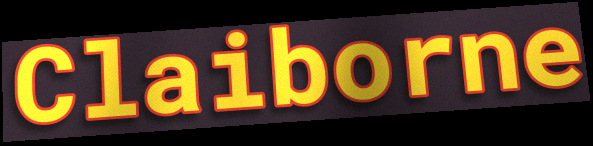
Claiborne